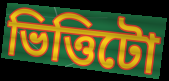
ভিত্তিটো